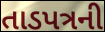
તાડપત્રની